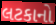
લટકાનો